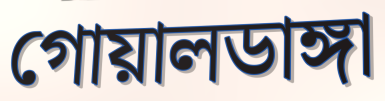
গোয়ালডাঙ্গা